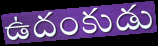
ఉదంకుడు